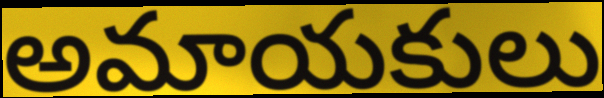
అమాయకులు